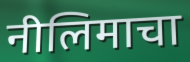
नीलिमाचा